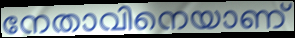
നേതാവിനെയാണ്